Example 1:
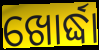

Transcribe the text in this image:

ଖୋର୍ଦ୍ଧା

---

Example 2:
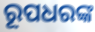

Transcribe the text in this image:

ରୂପଧରଙ୍କ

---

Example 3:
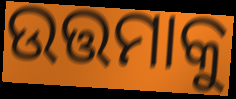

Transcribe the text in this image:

ଉତ୍ତମାକୁ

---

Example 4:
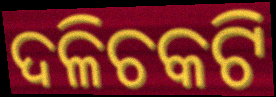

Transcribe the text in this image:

ଦଳିଚକଟି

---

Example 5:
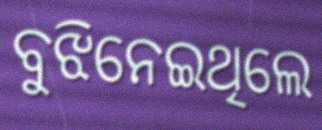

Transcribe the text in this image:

ବୁଝିନେଇଥିଲେ